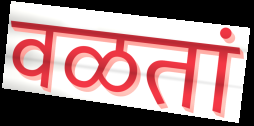
वळतां